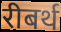
रीबर्थ